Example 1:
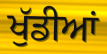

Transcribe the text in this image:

ਖੁੱਡੀਆਂ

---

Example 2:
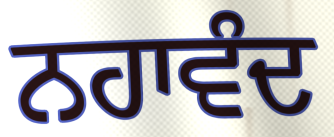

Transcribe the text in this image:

ਨਹਾਵੰਦ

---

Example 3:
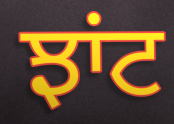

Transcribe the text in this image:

ਝਾਂਟ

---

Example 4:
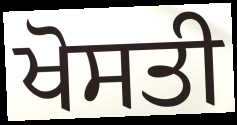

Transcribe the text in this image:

ਖੋਸਤੀ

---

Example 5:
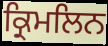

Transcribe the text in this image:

ਕ੍ਰਿਮਲਿਨ